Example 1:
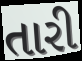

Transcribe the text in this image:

તારી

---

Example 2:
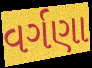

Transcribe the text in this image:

વર્ગણા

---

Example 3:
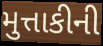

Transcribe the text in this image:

મુત્તાકીની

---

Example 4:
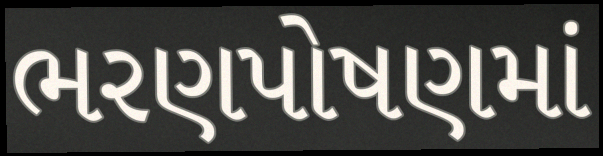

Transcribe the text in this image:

ભરણપોષણમાં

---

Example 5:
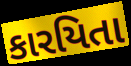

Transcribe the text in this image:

કારયિતા